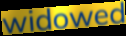
widowed